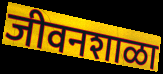
जीवनशाळा